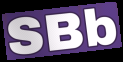
SBb